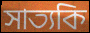
সাত্যকি